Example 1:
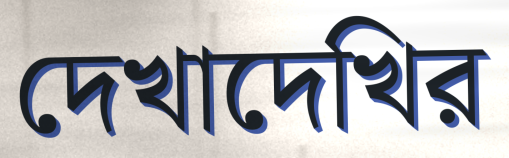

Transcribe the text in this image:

দেখাদেখির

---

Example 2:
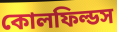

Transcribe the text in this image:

কোলফিল্ডস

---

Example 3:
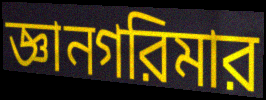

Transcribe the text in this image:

জ্ঞানগরিমার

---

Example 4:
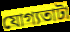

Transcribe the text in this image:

যোগ্যতাটা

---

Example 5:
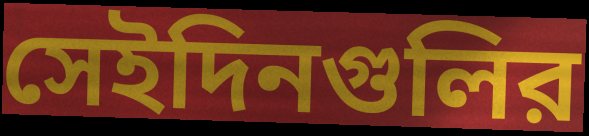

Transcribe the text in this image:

সেইদিনগুলির